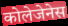
कोलेजेनेस